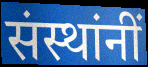
संस्थांनीं